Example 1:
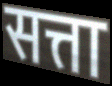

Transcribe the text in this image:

सत्ता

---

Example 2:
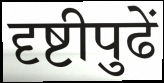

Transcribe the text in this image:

दृष्टीपुढें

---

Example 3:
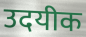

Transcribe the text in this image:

उदयीक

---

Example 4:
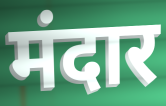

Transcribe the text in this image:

मंदार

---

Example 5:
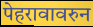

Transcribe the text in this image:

पेहरावावरुन